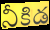
నీకిడ